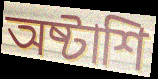
অষ্টাশি